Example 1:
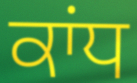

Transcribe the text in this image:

ਕਾਂਧ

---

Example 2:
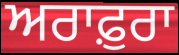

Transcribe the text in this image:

ਅਰਾਫ਼ੁਰਾ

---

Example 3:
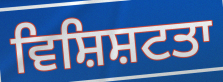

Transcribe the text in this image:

ਵਿਸ਼ਿਸ਼ਟਤਾ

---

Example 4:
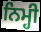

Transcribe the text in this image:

ਨਿਮ੍ਹੀ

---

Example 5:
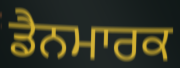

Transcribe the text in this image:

ਡੈਨਮਾਰਕ